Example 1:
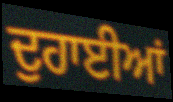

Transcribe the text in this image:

ਦੁਹਾਈਆਂ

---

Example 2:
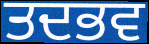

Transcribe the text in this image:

ਤਦਭਵ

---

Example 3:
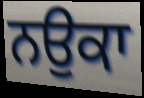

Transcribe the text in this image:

ਨਉਕਾ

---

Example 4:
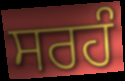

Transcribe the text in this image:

ਸਰਹੰ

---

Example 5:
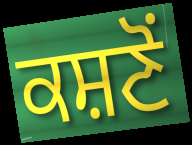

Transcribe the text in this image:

ਕਸ਼ਣੋਂ